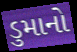
ડુમાનો